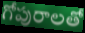
గోపురాలతో